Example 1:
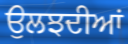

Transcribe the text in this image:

ਉਲਝਦੀਆਂ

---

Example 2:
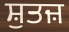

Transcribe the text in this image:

ਸ਼ੁਤਜ਼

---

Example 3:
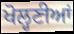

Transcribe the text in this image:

ਖੋਲ੍ਹਣੀਆਂ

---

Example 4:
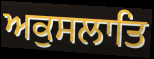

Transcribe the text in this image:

ਅਕੁਸਲਾਤਿ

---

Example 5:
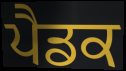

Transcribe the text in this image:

ਪੈਡਕ